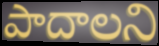
పాదాలని